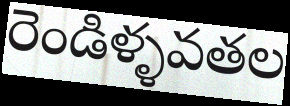
రెండిళ్ళవతల